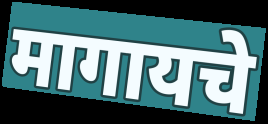
मागायचे